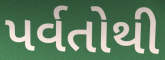
પર્વતોથી